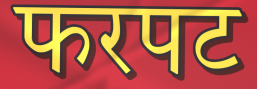
फरपट